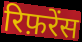
रिफ़रेंस